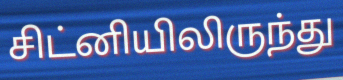
சிட்னியிலிருந்து